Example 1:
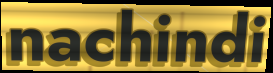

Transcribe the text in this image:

nachindi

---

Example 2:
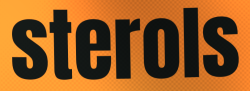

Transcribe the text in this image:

sterols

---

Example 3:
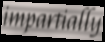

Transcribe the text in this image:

impartially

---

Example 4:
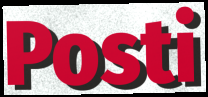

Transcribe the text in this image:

Posti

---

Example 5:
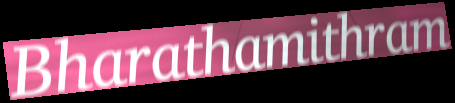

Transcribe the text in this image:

Bharathamithram